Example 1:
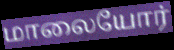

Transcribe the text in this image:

மாலையோர்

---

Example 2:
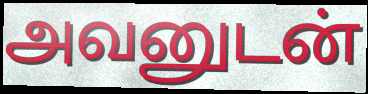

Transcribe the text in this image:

அவனுடன்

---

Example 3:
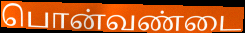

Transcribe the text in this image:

பொன்வண்டை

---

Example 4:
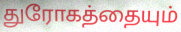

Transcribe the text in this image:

துரோகத்தையும்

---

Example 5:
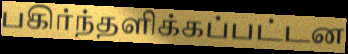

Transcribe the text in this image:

பகிர்ந்தளிக்கப்பட்டன